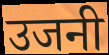
उजनी